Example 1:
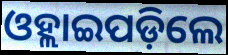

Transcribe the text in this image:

ଓହ୍ଲାଇପଡ଼ିଲେ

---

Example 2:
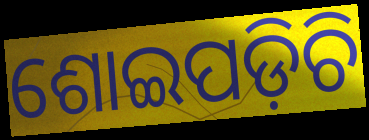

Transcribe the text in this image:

ଶୋଇପଡ଼ିଚି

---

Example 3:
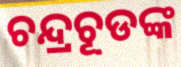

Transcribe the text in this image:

ଚନ୍ଦ୍ରଚୂଡଙ୍କ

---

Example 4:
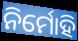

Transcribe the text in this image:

ନିର୍ମୋହି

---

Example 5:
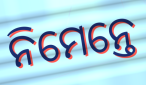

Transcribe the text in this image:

ନିମେନ୍ତେ